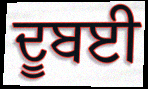
ਦੂਬਈ